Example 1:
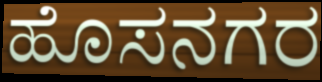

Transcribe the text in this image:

ಹೊಸನಗರ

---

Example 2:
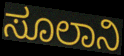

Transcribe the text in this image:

ಸೂಲಾನಿ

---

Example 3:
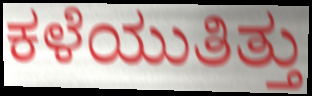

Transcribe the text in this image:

ಕಳೆಯುತಿತ್ತು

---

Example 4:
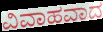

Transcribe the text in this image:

ವಿವಾಹವಾದ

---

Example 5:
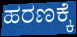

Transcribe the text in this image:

ಹರಣಕ್ಕೆ